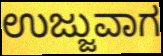
ಉಜ್ಜುವಾಗ